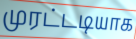
முரட்டடியாக